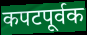
कपटपूर्वक